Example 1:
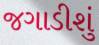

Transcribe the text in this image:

જગાડીશું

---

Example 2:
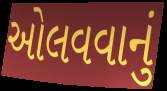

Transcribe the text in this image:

ઓલવવાનું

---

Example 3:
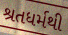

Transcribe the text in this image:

શ્રતધર્મથી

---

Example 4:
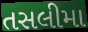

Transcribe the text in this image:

તસલીમા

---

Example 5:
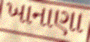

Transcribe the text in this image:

ખાનાણા